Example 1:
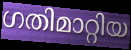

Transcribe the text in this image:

ഗതിമാറ്റിയ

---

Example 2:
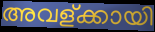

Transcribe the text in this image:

അവള്ക്കായി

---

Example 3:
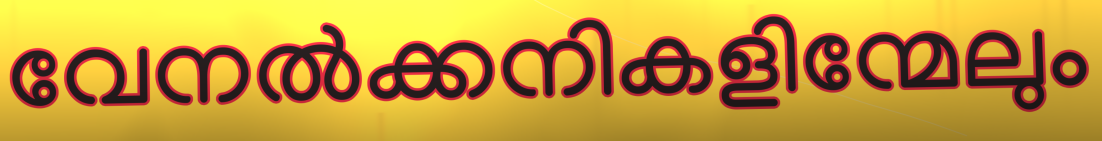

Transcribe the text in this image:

വേനൽക്കനികളിന്മേലും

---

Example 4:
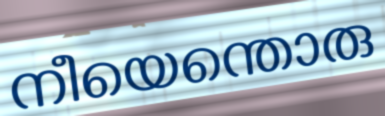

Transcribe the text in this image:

നീയെന്തൊരു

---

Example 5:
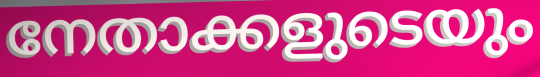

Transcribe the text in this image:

നേതാക്കളുടെയും